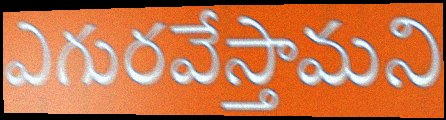
ఎగురవేస్తామని